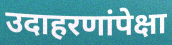
उदाहरणांपेक्षा